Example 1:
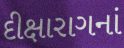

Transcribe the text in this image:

દીક્ષારાગનાં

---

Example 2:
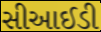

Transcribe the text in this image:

સીઆઈડી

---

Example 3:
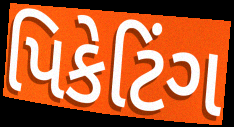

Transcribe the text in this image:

પિકેટિંગ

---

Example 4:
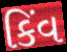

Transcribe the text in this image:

કિંવ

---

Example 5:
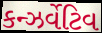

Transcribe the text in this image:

કન્ઝર્વેટિવ